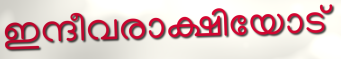
ഇന്ദീവരാക്ഷിയോട്